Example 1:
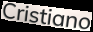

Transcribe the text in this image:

Cristiano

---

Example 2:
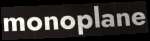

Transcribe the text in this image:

monoplane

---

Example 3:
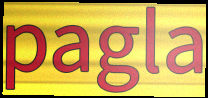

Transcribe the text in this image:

pagla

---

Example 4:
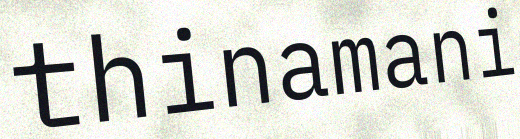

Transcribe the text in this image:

thinamani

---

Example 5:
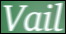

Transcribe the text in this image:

Vail